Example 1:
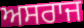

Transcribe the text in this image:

ਅਸਰਾਜ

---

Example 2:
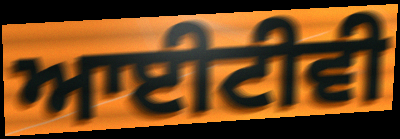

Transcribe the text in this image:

ਆਈਟੀਵੀ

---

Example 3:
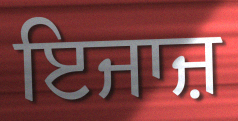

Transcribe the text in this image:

ਇਜਾਜ਼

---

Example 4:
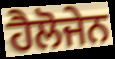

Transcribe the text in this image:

ਹੈਲੋਜੇਨ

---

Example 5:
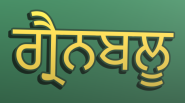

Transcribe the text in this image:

ਗ੍ਰੈਨਬਲੂ